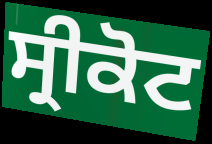
ਸ੍ਰੀਕੋਟ